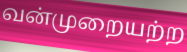
வன்முறையற்ற